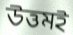
উত্তমই